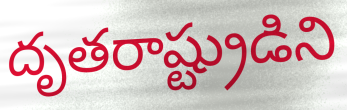
దృతరాష్ట్రుడిని